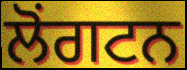
ਲੋਂਗਟਨ